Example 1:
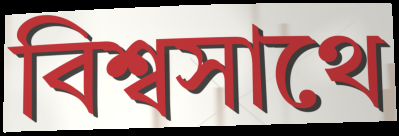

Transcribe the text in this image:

বিশ্বসাথে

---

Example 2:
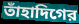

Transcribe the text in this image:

তাঁহাদিগের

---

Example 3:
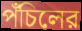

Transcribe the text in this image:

পঁচিলের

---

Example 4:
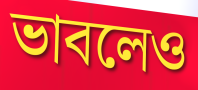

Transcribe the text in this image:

ভাবলেও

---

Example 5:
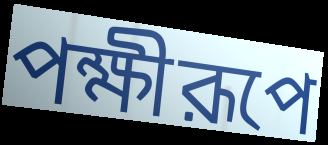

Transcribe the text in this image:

পক্ষীরূপে